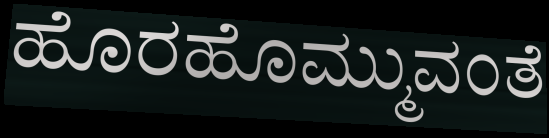
ಹೊರಹೊಮ್ಮುವಂತೆ